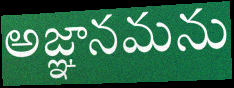
అజ్ఞానమను